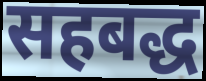
सहबद्ध